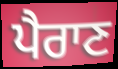
ਪੈਰਾਣ